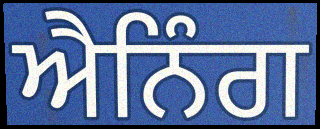
ਐਨਿੰਗ